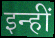
इन्हीं